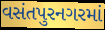
વસંતપુરનગરમાં